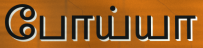
போய்யா